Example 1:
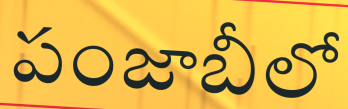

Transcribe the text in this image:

పంజాబీలో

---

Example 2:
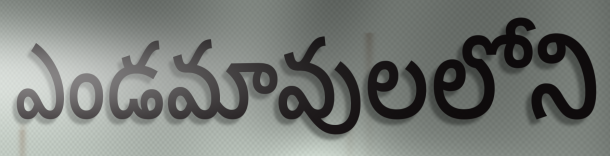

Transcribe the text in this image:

ఎండమావులలోని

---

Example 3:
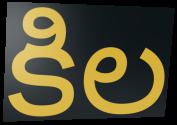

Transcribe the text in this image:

కిల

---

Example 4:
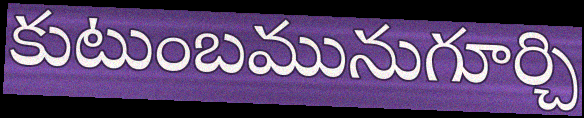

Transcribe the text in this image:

కుటుంబమునుగూర్చి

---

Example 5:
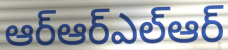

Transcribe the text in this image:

ఆర్ఆర్ఎల్ఆర్